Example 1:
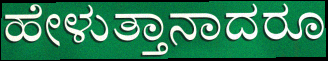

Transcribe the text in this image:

ಹೇಳುತ್ತಾನಾದರೂ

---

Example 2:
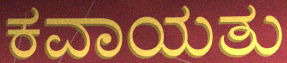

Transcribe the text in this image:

ಕವಾಯತು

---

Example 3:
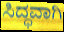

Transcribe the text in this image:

ಸಿದ್ಧವಾಗಿ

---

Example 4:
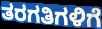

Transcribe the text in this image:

ತರಗತಿಗಳಿಗೆ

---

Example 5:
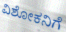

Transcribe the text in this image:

ವಿಶೋಕನಿಗೆ